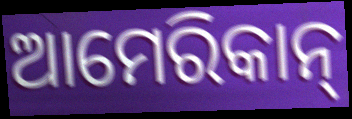
ଆମେରିକାନ୍